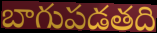
బాగుపడతది